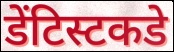
डेंटिस्टकडे